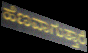
ಹೆಣವಾಗುತ್ತಾರೆ